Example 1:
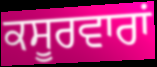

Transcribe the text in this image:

ਕਸੂਰਵਾਰਾਂ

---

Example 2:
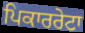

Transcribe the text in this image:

ਪਿਕਾਰਰੇਟਾ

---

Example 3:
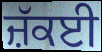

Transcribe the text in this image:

ਜ਼ੱਕਈ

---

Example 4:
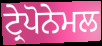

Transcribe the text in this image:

ਟ੍ਰੇਪੋਨੇਮਲ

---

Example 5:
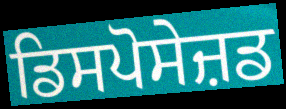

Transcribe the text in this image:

ਡਿਸਪੋਸੇਜ਼ਡ